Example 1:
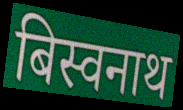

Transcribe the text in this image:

बिस्वनाथ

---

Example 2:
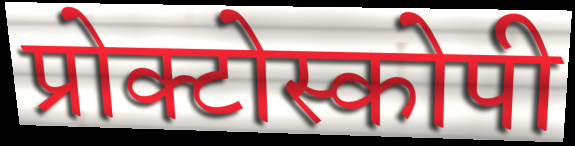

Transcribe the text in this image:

प्रोक्टोस्कोपी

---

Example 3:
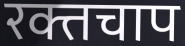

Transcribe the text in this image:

रक्तचाप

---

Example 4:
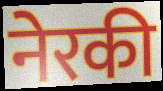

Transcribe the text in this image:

नेरकी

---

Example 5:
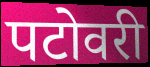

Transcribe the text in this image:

पटोवरी